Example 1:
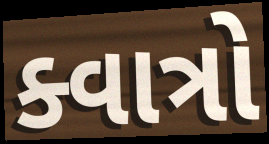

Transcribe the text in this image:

ક્વાત્રો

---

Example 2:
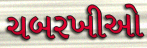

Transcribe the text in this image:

ચબરખીઓ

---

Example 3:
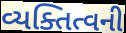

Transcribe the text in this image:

વ્યક્તિત્વની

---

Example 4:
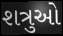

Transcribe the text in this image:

શત્રુઓ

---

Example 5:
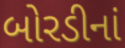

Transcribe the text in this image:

બોરડીનાં